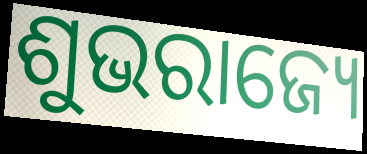
ଶୁଭରାଜ୍ୟେ